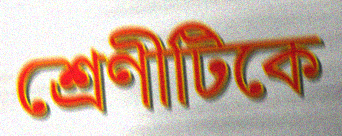
শ্রেণীটিকে